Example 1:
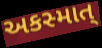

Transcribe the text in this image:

અકસ્માત્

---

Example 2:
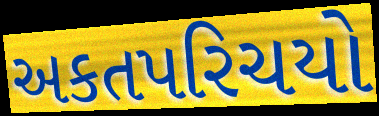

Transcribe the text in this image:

અકતપરિચયો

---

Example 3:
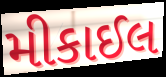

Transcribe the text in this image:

મીકાઈલ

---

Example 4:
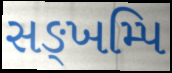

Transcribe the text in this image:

સઙ્ખમ્પિ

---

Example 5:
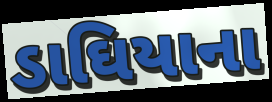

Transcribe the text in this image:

ડાઘિયાના